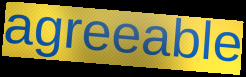
agreeable